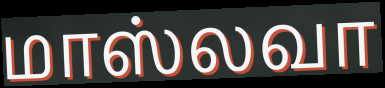
மாஸ்லவா